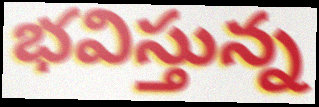
భవిస్తున్న